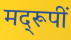
मद्‌रूपीं